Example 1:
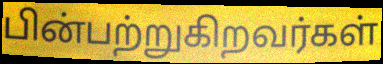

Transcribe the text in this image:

பின்பற்றுகிறவர்கள்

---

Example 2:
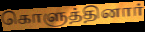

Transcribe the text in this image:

கொளுத்தினார்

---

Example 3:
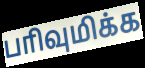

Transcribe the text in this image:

பரிவுமிக்க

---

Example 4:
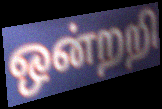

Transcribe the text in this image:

ஒன்றறி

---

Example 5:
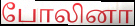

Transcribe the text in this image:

போலினா